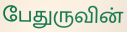
பேதுருவின்